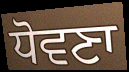
ਧੋਵਣਾ